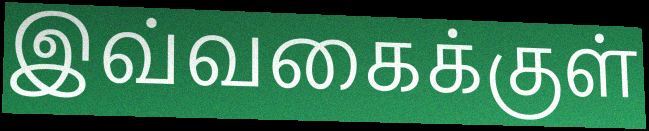
இவ்வகைக்குள்